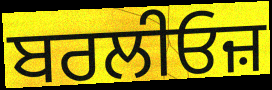
ਬਰਲੀਓਜ਼